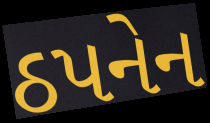
ઠપનેન